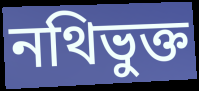
নথিভুক্ত